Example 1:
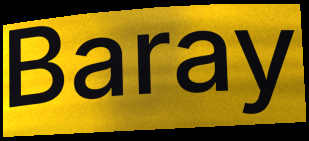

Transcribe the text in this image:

Baray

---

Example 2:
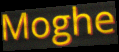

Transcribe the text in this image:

Moghe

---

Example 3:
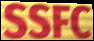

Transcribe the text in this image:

SSFC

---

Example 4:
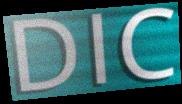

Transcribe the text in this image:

DIC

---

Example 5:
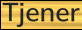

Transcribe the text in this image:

Tjener